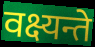
वक्ष्यन्ते